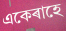
একেৰাহে